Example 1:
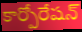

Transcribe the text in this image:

కార్పోరేషన్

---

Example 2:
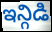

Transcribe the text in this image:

ఇన్గిడి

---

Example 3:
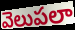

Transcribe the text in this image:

వెలుపలా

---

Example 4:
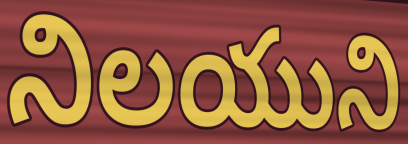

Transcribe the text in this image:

నిలయుని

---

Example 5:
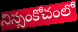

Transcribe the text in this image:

నిస్సంకోచంలో